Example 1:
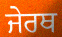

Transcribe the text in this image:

ਜੇਰਥ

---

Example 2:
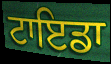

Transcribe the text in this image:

ਟਾਇਡਾ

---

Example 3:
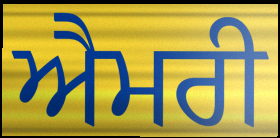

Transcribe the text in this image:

ਐਮਰੀ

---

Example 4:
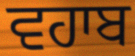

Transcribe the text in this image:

ਵਹਾਬ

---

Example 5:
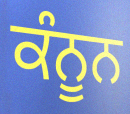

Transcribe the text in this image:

ਕੰਨੂਨ